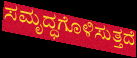
ಸಮೃದ್ಧಗೊಳಿಸುತ್ತದೆ